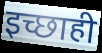
इच्छाही